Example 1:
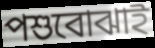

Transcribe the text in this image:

পশুবোঝাই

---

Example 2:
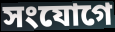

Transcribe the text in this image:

সংযোগে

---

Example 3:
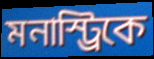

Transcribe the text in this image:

মনাস্ট্রিকে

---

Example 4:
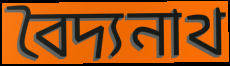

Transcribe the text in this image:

বৈদ্যনাথ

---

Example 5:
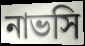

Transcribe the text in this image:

নাভসি